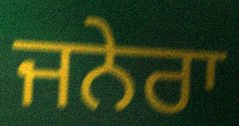
ਜਨੇਰਾ